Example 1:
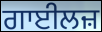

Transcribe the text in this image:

ਗਾਈਲਜ਼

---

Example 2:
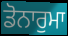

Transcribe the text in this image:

ਡੋਨਾਰੁਮਾ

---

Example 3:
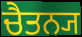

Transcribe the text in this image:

ਚੈਤਨ੍ਯ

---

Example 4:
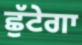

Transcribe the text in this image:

ਛੁੱਟੇਗਾ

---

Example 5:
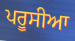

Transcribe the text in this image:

ਪਰੂਸੀਆ